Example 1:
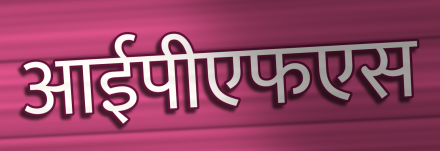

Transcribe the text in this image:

आईपीएफएस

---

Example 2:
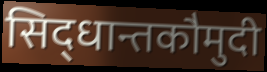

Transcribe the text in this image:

सिद्धान्तकौमुदी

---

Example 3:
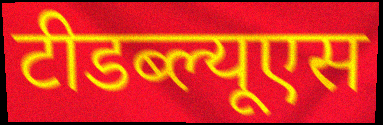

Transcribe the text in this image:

टीडब्ल्यूएस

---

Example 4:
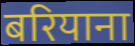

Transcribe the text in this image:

बरियाना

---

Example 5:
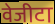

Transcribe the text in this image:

वेजीटा